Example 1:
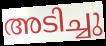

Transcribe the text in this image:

അടിച്ചു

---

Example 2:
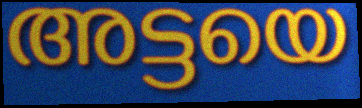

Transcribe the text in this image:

അട്ടയെ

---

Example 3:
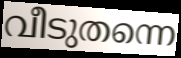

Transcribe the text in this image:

വീടുതന്നെ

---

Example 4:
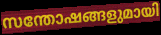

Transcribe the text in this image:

സന്തോഷങ്ങളുമായി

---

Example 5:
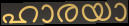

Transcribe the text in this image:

ഹാരയാ